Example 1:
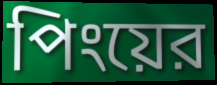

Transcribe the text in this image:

পিংয়ের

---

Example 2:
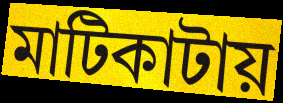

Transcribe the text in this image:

মাটিকাটায়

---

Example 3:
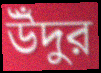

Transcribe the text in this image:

উঁদুর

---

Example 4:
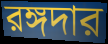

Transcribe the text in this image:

রঙ্গদার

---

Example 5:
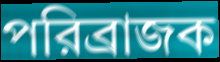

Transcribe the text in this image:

পরিব্রাজক